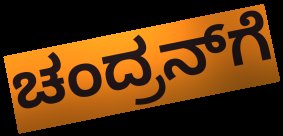
ಚಂದ್ರನ್‌ಗೆ